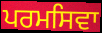
ਪਰਮਸਿਵਾ